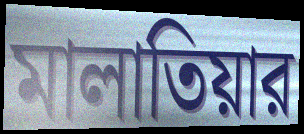
মালাতিয়ার